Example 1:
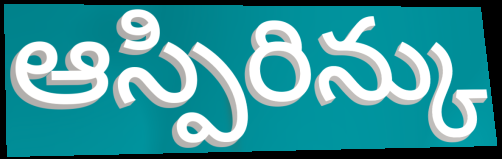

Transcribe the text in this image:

ఆస్పిరిన్కు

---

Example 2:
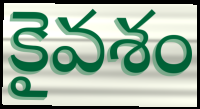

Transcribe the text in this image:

కైవశం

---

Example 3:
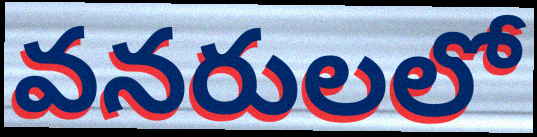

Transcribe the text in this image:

వనరులలో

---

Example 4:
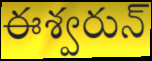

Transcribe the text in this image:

ఈశ్వరున్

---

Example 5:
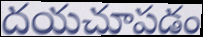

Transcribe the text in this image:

దయచూపడం